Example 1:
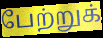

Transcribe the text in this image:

பேற்றுக்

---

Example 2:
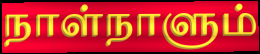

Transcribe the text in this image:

நாள்நாளும்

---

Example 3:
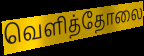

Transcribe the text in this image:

வெளித்தோலை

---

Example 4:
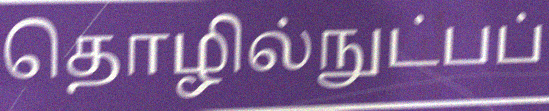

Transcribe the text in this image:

தொழில்நுட்பப்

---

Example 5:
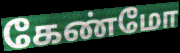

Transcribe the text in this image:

கேண்மோ